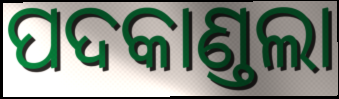
ପଦକାଣ୍ଡଲା